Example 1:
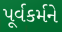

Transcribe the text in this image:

પૂર્વકર્મને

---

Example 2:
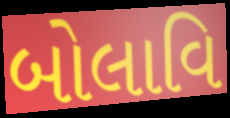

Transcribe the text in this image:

બોલાવિ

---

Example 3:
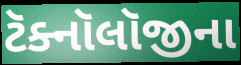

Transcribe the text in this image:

ટૅક્નૉલૉજીના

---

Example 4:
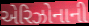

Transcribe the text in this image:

એરિઝોનાની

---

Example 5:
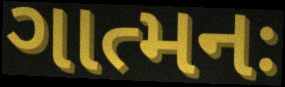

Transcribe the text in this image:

ગાત્મનઃ